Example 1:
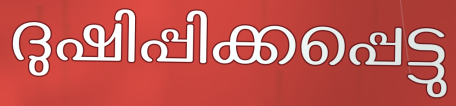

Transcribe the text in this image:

ദുഷിപ്പിക്കപ്പെട്ടു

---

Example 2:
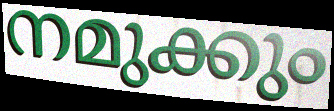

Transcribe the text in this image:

നമുക്കും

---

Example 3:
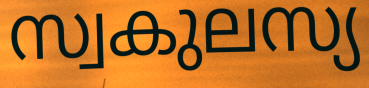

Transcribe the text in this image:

സ്വകുലസ്യ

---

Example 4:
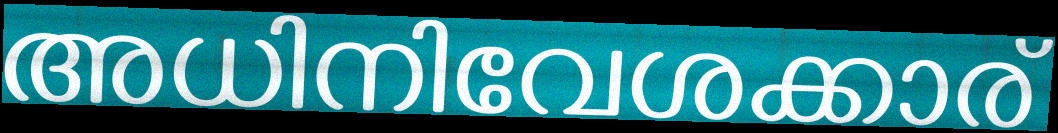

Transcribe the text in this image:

അധിനിവേശക്കാര്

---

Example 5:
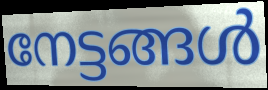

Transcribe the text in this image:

നേട്ടങ്ങൾ